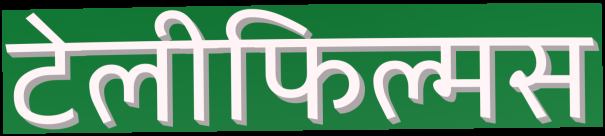
टेलीफिल्मस